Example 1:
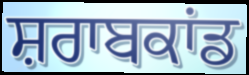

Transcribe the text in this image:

ਸ਼ਰਾਬਕਾਂਡ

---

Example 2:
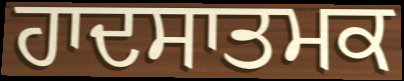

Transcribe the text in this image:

ਹਾਦਸਾਤਮਕ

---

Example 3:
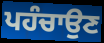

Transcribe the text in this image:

ਪਹੰਚਾਉਣ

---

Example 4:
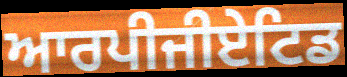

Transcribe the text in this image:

ਆਰਪੀਜੀਏਟਿਡ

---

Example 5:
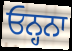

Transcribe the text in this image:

ਓਨ੍ਹਨਾ